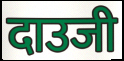
दाउजी